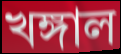
খঙ্গাল